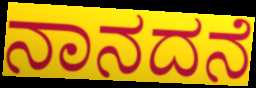
ನಾನದನೆ